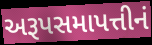
અરૂપસમાપત્તીનં